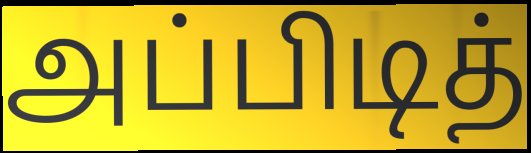
அப்பிடித்